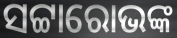
ସଟ୍ଟାରୋଭଙ୍କ